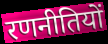
रणनीतियों